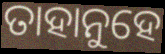
ତାହାନୁହେ